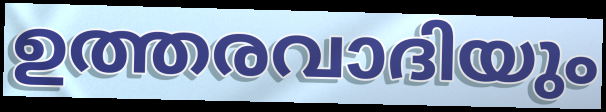
ഉത്തരവാദിയും